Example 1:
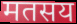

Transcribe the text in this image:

मतसय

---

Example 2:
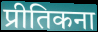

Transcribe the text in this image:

प्रीतिकना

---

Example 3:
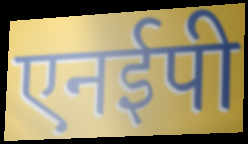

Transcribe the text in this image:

एनईपी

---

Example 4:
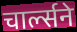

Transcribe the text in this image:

चार्ल्सने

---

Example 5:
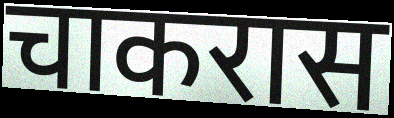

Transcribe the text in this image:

चाकरास